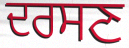
ਦਰਸਣ